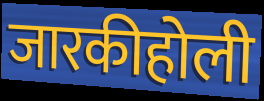
जारकीहोली